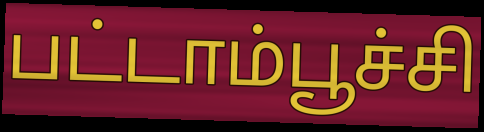
பட்டாம்பூச்சி